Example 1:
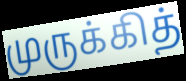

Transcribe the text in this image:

முருக்கித்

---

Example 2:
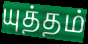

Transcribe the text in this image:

யுத்தம்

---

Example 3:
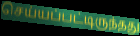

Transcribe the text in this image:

செய்யப்பட்டிருந்தது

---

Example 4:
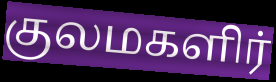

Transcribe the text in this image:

குலமகளிர்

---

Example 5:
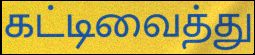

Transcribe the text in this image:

கட்டிவைத்து